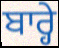
ਬਾਰ੍ਹੇ